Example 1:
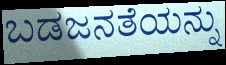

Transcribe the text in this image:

ಬಡಜನತೆಯನ್ನು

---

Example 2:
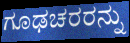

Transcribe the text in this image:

ಗೂಢಚರರನ್ನು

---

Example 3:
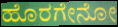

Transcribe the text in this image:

ಹೊರಗೇನೋ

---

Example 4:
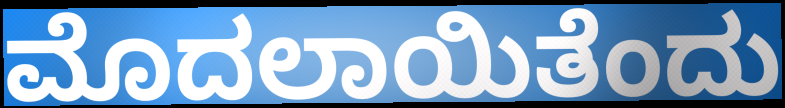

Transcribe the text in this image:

ಮೊದಲಾಯಿತೆಂದು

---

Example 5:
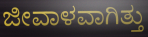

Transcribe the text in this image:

ಜೀವಾಳವಾಗಿತ್ತು